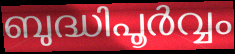
ബുദ്ധിപൂർവ്വം